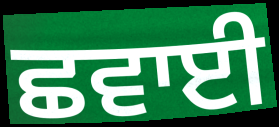
ਛਵਾਈ